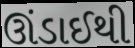
ઊંડાઈથી